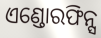
ଏଣ୍ଡୋରଫିନ୍ସ